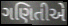
ગણિતીએ